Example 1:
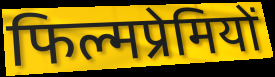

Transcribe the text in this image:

फिल्मप्रेमियों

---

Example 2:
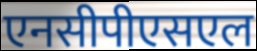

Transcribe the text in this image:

एनसीपीएसएल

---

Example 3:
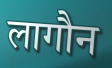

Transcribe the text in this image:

लागौन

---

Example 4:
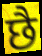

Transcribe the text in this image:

छै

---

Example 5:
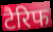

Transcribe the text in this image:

टैरिफ